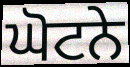
ਘੋਟਨੇ